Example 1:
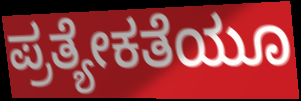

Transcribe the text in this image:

ಪ್ರತ್ಯೇಕತೆಯೂ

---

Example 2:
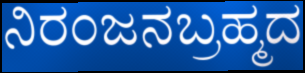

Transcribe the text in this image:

ನಿರಂಜನಬ್ರಹ್ಮದ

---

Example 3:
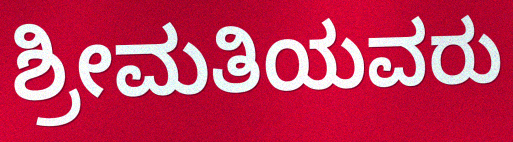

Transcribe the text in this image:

ಶ್ರೀಮತಿಯವರು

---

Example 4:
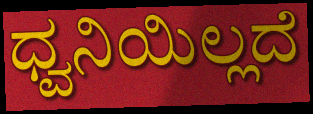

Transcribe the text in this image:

ಧ್ವನಿಯಿಲ್ಲದೆ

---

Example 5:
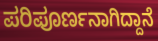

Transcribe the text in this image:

ಪರಿಪೂರ್ಣನಾಗಿದ್ದಾನೆ